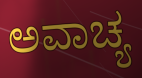
ಅವಾಚ್ಯ